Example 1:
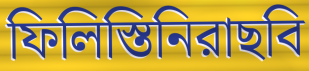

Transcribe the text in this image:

ফিলিস্তিনিরাছবি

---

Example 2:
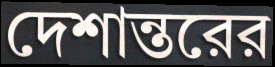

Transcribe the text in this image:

দেশান্তরের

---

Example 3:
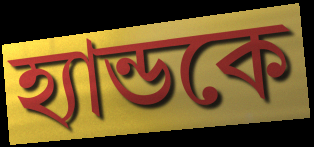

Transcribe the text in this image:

হ্যান্ডকে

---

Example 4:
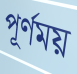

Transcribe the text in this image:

পূর্ণময়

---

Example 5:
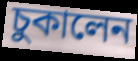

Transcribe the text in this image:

চুকালেন